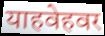
याहवेहवर